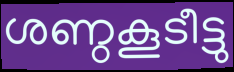
ശണ്ഠകൂടീട്ടു